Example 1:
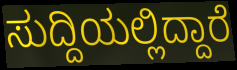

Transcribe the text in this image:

ಸುದ್ದಿಯಲ್ಲಿದ್ದಾರೆ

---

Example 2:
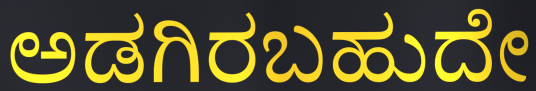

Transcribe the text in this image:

ಅಡಗಿರಬಹುದೇ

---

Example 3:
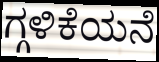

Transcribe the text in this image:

ಗ್ಗಳಿಕೆಯನೆ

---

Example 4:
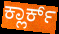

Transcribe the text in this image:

ಕ್ಲಾರ್ಕ್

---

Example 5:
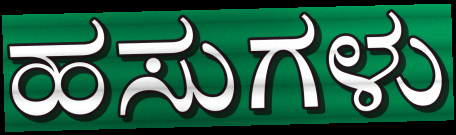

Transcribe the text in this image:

ಹಸುಗಳು